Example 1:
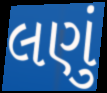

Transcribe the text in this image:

લણું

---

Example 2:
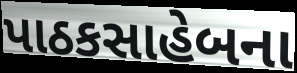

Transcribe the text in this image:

પાઠકસાહેબના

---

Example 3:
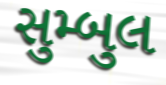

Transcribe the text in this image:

સુમ્બુલ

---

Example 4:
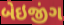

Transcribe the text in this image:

બેઇજીંગ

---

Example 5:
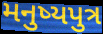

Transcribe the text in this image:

મનુષ્યપુત્ર